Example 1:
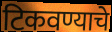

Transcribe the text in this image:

टिकवण्याचे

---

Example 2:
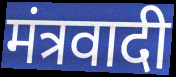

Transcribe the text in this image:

मंत्रवादी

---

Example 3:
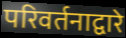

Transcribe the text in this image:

परिवर्तनाद्वारे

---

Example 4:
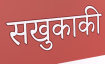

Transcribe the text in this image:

सखुकाकी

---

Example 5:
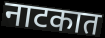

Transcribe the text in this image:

नाटकात